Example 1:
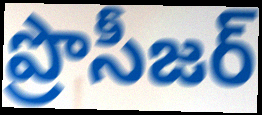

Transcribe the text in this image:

ప్రొసీజర్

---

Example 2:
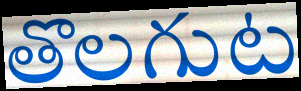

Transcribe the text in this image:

తొలగుట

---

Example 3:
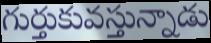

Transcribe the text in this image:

గుర్తుకువస్తున్నాడు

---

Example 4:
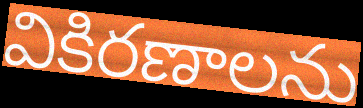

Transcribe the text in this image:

వికిరణాలను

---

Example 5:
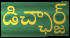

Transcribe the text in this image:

డిచ్ఛార్జ్